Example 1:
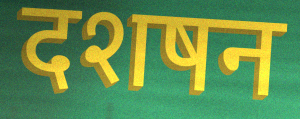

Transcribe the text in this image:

दशषन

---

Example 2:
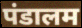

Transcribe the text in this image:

पंडालम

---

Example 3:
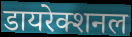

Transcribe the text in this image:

डायरेक्शनल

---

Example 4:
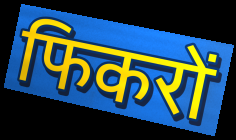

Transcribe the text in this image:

फिकरों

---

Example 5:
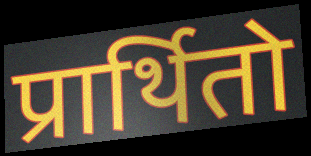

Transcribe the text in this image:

प्रार्थितो